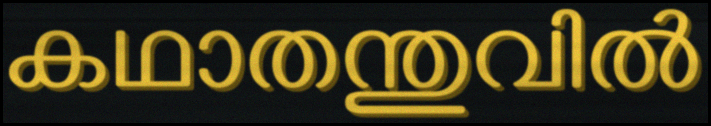
കഥാതന്തുവിൽ